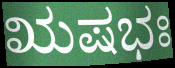
ಋಷಭಃ